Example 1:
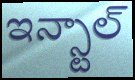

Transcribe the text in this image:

ఇన్స్టాల్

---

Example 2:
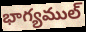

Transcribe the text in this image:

భాగ్యముల్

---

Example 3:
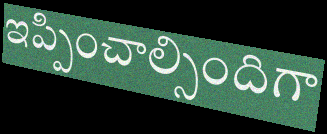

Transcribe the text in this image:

ఇప్పించాల్సిందిగా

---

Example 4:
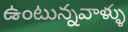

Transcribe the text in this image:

ఉంటున్నవాళ్ళు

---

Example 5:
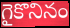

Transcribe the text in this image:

గైకొనినం